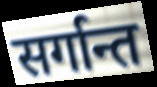
सर्गान्त